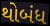
થોબંધ